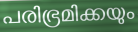
പരിഭ്രമിക്കയും